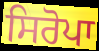
ਸਿਰੋਪਾ